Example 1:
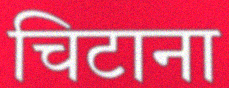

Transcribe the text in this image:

चिटाना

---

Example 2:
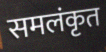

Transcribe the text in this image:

समलंकृत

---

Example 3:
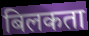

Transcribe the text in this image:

बिलकता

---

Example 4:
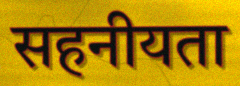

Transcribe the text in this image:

सहनीयता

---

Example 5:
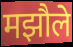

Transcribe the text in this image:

मझौले